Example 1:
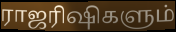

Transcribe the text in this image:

ராஜரிஷிகளும்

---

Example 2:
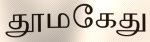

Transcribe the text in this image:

தூமகேது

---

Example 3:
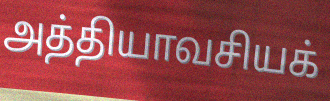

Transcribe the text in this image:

அத்தியாவசியக்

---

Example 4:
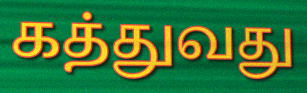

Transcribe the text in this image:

கத்துவது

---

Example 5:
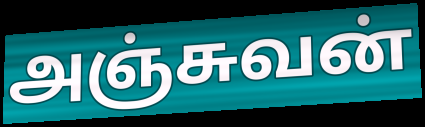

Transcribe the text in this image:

அஞ்சுவன்